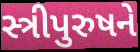
સ્ત્રીપુરુષને